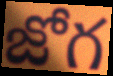
జోగ